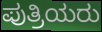
ಪುತ್ರಿಯರು